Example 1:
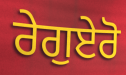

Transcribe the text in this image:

ਰੇਗੁਏਰੋ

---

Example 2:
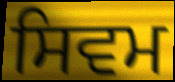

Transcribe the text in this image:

ਸਿਵਮ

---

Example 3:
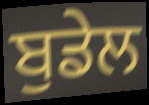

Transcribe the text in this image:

ਬੁਡੇਲ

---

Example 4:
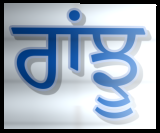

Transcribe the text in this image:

ਰਾਂਝੂ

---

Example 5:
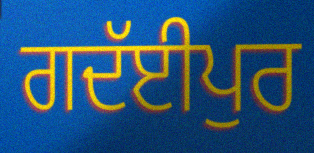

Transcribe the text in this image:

ਗਦੱਈਪੁਰ